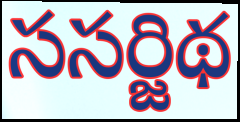
ససర్జిథ